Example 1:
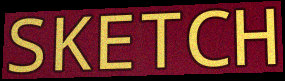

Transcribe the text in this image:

SKETCH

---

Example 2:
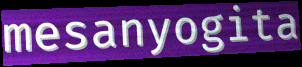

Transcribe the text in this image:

mesanyogita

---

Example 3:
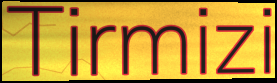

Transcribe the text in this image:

Tirmizi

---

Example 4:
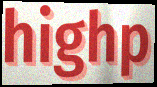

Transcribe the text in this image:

highp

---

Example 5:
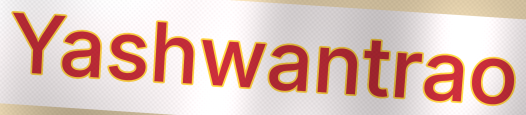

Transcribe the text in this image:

Yashwantrao